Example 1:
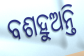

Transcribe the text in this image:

ବଶହୁଅନ୍ତି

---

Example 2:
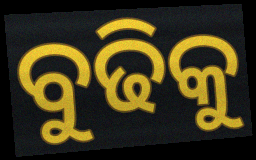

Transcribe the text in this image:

ବୁଢିକୁ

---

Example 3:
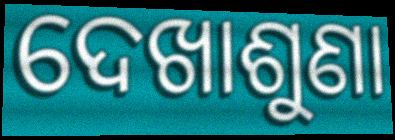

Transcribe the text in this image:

ଦେଖାଶୁଣା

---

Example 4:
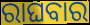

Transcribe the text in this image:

ରାଘବାର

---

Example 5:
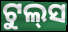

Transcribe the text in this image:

ଟୁଲ୍‌ସ